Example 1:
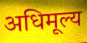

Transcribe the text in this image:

अधिमूल्य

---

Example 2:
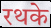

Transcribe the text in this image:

रथके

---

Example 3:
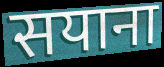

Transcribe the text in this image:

सयाना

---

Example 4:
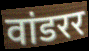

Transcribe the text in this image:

वांडरर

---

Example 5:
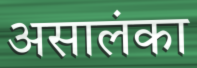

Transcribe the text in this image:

असालंका